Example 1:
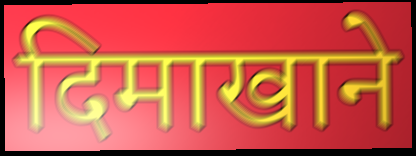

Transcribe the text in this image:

दिमाखाने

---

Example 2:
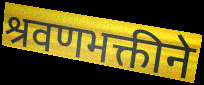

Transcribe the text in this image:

श्रवणभक्तीने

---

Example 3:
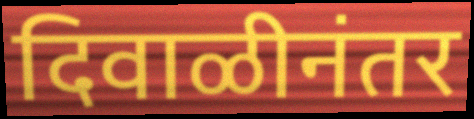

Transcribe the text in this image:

दिवाळीनंतर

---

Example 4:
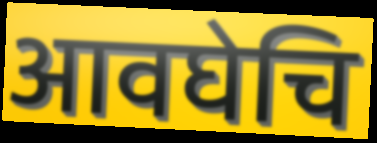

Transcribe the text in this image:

आवघेचि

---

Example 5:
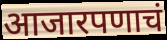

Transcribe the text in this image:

आजारपणाचं